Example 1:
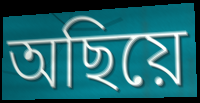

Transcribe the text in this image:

অছিয়ে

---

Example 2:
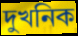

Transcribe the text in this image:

দুখনিক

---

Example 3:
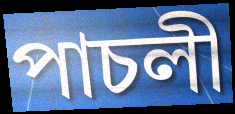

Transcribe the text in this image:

পাচলী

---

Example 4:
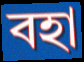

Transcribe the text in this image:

বহা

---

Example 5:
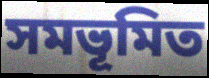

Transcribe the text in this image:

সমভূমিত